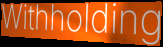
Withholding